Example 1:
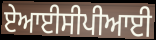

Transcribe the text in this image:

ਏਆਈਸੀਪੀਆਈ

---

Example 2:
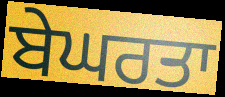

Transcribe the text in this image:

ਬੇਘਰਤਾ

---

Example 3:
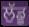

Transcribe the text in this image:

ਲੁੱਡੂ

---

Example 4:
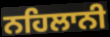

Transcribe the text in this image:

ਨਹਿਲਾਨੀ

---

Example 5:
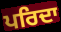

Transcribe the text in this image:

ਪਰਿਦਾ